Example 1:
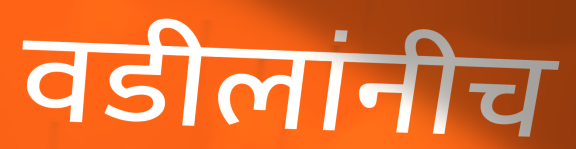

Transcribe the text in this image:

वडीलांनीच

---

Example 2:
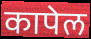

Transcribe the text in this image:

कापेल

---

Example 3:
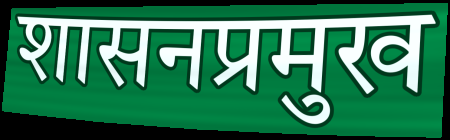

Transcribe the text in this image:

शासनप्रमुख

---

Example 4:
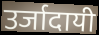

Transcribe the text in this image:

उर्जादायी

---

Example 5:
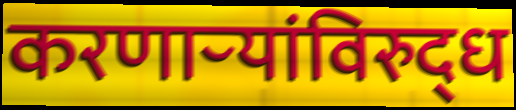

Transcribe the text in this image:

करणाऱ्यांविरुद्ध